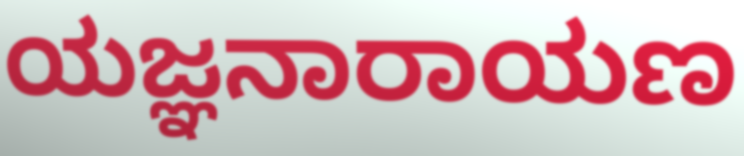
ಯಜ್ಞನಾರಾಯಣ